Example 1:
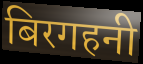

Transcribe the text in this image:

बिरगहनी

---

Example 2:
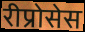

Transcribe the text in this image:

रीप्रोसेस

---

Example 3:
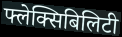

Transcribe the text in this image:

फ्लेक्सिबिलिटी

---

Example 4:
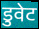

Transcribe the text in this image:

डुवेट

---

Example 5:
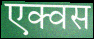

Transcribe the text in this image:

एक्वस